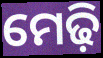
ମେଢ଼ି